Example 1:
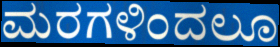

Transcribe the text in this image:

ಮರಗಳಿಂದಲೂ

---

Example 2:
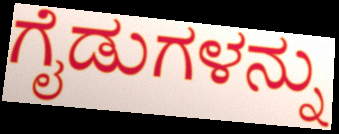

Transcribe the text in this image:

ಗೈಡುಗಳನ್ನು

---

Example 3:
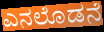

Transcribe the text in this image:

ಎನಲೊಡನೆ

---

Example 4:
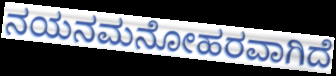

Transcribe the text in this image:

ನಯನಮನೋಹರವಾಗಿದೆ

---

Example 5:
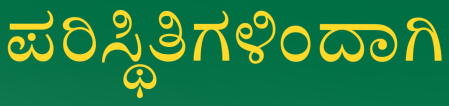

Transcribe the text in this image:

ಪರಿಸ್ಥಿತಿಗಳಿಂದಾಗಿ